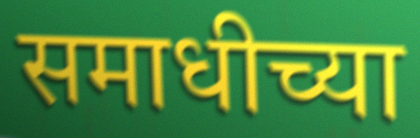
समाधीच्या